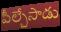
పీల్చేసాడు